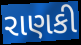
રાણકી